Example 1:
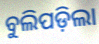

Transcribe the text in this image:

ବୁଲିପଡ଼ିଲା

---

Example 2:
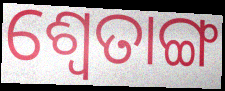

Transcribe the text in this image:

ଶ୍ୱେତାଙ୍ଗ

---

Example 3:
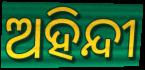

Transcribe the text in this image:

ଅହିନ୍ଦୀ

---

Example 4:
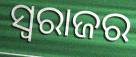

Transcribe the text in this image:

ସ୍ୱରାଜର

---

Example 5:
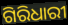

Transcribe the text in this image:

ଗିରିଧାରୀ